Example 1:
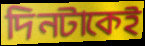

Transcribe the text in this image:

দিনটাকেই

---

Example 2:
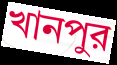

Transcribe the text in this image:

খানপুর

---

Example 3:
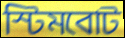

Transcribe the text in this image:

স্টিমবোট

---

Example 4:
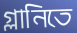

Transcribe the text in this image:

গ্লানিতে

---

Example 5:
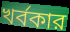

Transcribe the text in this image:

খর্বকার